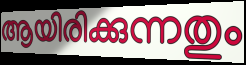
ആയിരിക്കുന്നതും